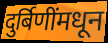
दुर्बिणींमधून